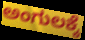
ಅಂಗುಲಕ್ಕೆ